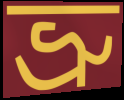
ভ্রু